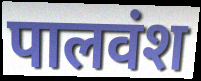
पालवंश